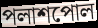
পলাশপোল